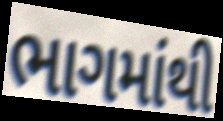
ભાગમાંથી